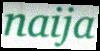
naija